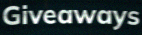
Giveaways